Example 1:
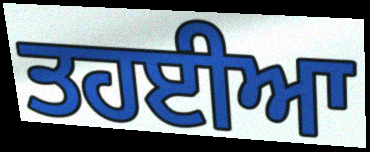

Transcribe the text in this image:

ਤਹਈਆ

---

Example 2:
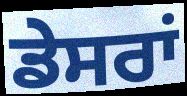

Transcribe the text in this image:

ਡੇਸਰਾਂ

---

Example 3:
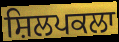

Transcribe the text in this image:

ਸ਼ਿਲਪਕਲਾ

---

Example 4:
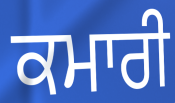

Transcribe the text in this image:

ਕਮਾਰੀ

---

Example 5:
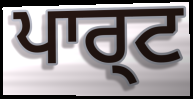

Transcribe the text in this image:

ਪਾਰ੍ਟ